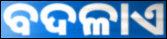
ବଦଳାଏ